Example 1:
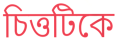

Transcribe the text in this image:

চিত্তটিকে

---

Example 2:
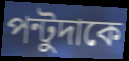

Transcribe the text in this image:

পন্টুদাকে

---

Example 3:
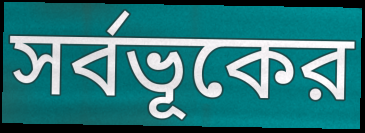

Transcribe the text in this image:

সর্বভূকের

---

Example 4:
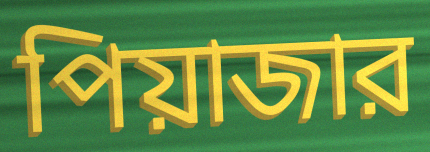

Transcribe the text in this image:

পিয়াজার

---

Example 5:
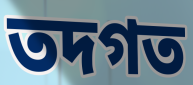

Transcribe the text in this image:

তদগত